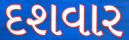
દશવાર